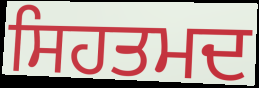
ਸਿਹਤਮਦ